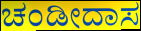
ಚಂಡೀದಾಸ